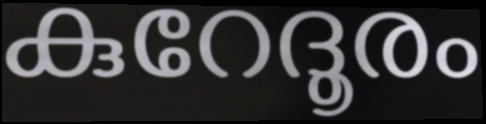
കുറേദൂരം